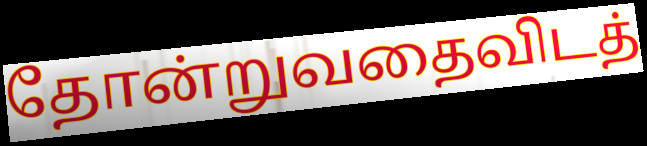
தோன்றுவதைவிடத்